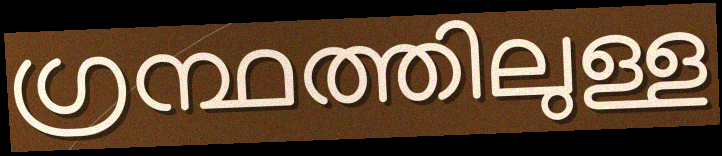
ഗ്രന്ഥത്തിലുള്ള